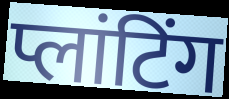
प्लांटिंग